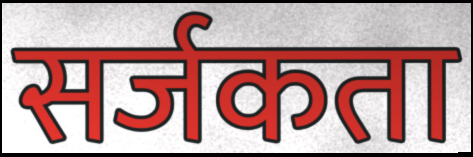
सर्जकता